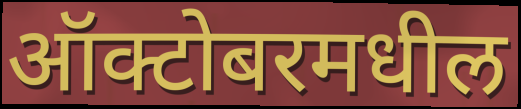
ऑक्टोबरमधील